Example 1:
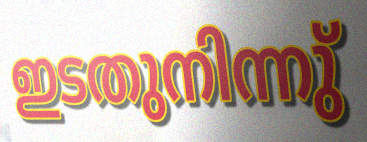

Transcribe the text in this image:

ഇടതുനിന്നു്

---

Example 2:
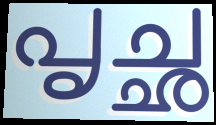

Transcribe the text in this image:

പൃച്ഛ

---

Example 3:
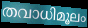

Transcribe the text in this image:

തവാധിമൂലം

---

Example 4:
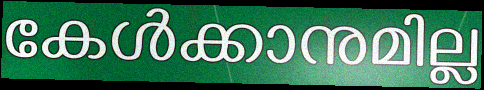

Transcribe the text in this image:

കേൾക്കാനുമില്ല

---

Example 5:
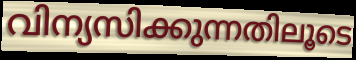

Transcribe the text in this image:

വിന്യസിക്കുന്നതിലൂടെ